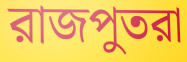
রাজপুতরা